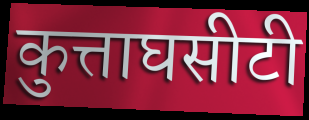
कुत्ताघसीटी